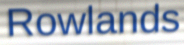
Rowlands